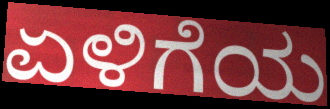
ಏಳಿಗೆಯ